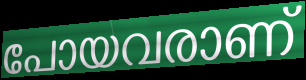
പോയവരാണ്